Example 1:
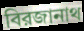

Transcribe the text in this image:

বিরজানাথ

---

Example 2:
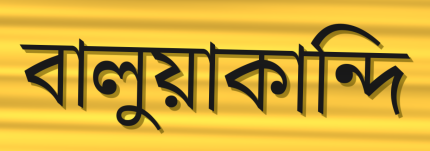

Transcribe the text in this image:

বালুয়াকান্দি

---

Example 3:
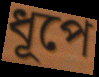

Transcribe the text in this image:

ধূপে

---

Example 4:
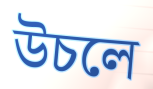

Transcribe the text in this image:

উচলে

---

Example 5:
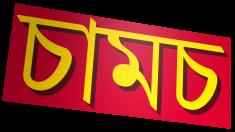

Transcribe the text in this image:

চামচ